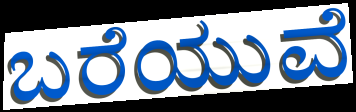
ಬರೆಯುವೆ